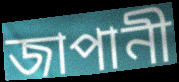
জাপানী